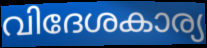
വിദേശകാര്യ